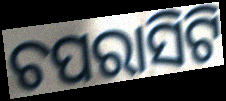
ଚପରାସିଟି